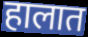
हालात